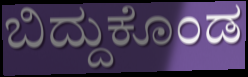
ಬಿದ್ದುಕೊಂಡ